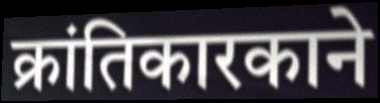
क्रांतिकारकाने